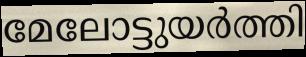
മേലോട്ടുയർത്തി